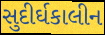
સુદીર્ઘકાલીન